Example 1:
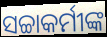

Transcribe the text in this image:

ସଚ୍ଚାକର୍ମୀଙ୍କ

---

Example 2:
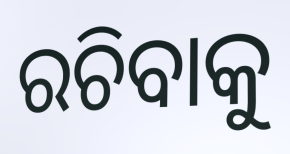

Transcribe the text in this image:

ରଚିବାକୁ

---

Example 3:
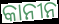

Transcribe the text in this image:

କାନୀନ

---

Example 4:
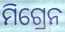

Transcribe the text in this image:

ମିଗ୍ରେନ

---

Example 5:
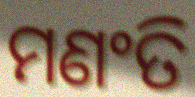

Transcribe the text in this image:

ମଣଂତି